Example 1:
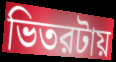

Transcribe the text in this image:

ভিতরটায়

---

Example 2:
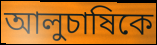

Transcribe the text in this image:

আলুচাষিকে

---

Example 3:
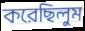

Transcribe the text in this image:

করেছিলুম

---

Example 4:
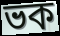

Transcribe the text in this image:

ভক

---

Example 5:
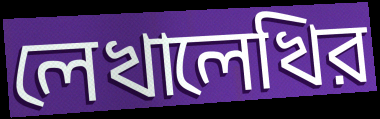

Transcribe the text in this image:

লেখালেখির